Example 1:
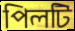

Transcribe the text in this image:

পিলটি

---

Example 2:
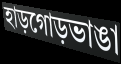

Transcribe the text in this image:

হাড়গোড়ভাঙা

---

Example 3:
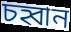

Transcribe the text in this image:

চহ্বান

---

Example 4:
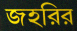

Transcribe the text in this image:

জহরির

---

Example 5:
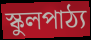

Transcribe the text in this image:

স্কুলপাঠ্য